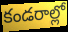
కండరాల్లో